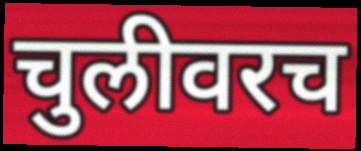
चुलीवरच